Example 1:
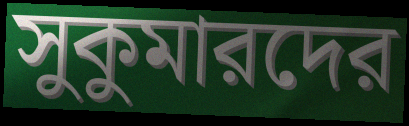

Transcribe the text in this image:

সুকুমারদের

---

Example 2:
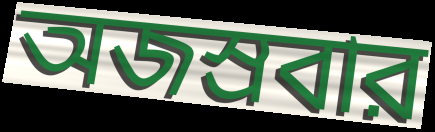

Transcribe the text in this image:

অজস্রবার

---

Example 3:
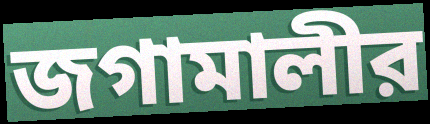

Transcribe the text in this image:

জগামালীর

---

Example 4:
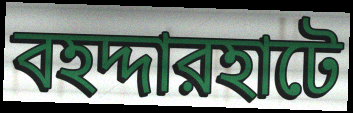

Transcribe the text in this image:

বহদ্দারহাটে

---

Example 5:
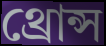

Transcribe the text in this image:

থ্রোন্স